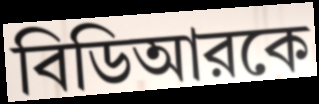
বিডিআরকে